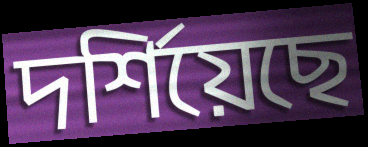
দর্শিয়েছে